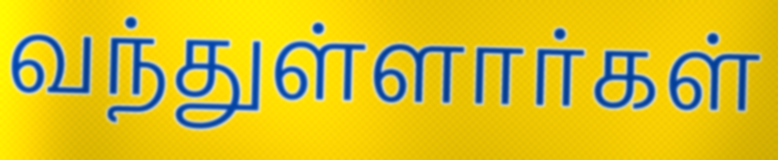
வந்துள்ளார்கள்